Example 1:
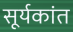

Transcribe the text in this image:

सूर्यकांत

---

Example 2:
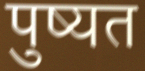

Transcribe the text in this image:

पुष्यत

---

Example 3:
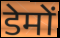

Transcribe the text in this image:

डेमों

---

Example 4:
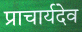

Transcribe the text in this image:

प्राचार्यदेव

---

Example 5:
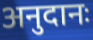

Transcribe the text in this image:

अनुदानः